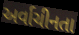
અર્વાચીનતા